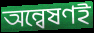
অন্বেষণই